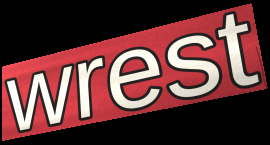
wrest